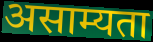
असाम्यता